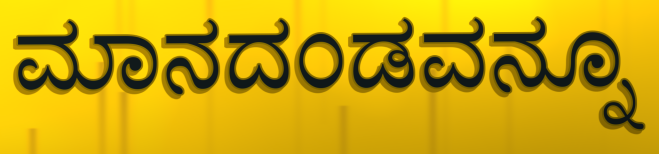
ಮಾನದಂಡವನ್ನೂ